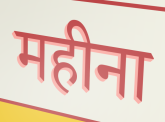
महीना